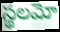
స్థలమో